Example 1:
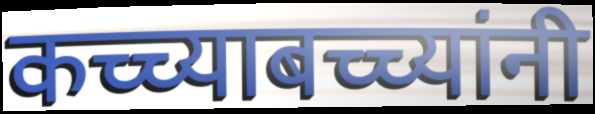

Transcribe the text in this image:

कच्च्याबच्च्यांनी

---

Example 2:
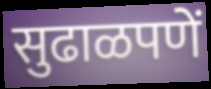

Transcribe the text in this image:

सुढाळपणें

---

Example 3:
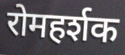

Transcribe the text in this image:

रोमहर्शक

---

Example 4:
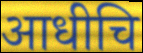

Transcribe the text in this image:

आधीचि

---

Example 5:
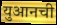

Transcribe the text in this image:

युआनची